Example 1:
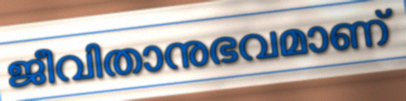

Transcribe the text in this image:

ജീവിതാനുഭവമാണ്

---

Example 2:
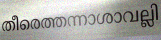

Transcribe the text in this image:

തീരെത്തന്നാശാവല്ലി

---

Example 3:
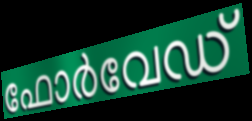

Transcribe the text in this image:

ഫോർവേഡ്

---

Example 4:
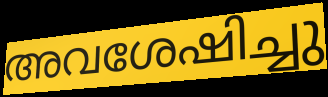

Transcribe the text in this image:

അവശേഷിച്ചു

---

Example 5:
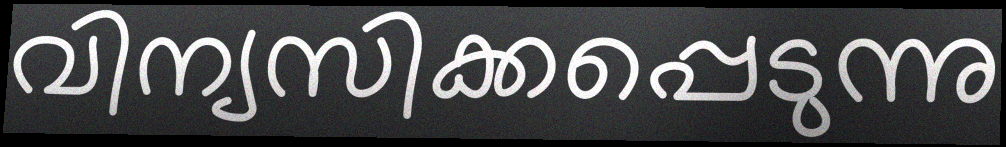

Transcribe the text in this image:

വിന്യസിക്കപ്പെടുന്നു